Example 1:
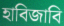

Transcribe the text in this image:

হাবিজাবি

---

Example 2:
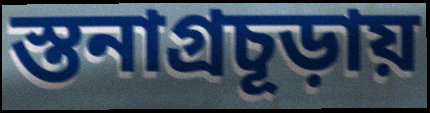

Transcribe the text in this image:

স্তনাগ্রচূড়ায়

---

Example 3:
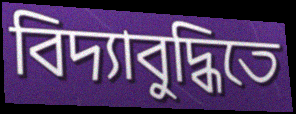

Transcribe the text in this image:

বিদ্যাবুদ্ধিতে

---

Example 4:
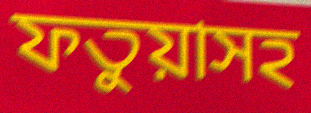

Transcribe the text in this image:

ফতুয়াসহ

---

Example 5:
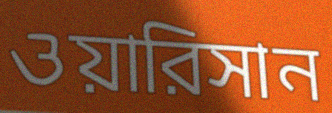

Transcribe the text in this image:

ওয়ারিসান